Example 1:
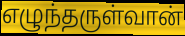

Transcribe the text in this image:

எழுந்தருள்வான்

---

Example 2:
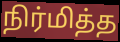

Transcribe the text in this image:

நிர்மித்த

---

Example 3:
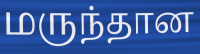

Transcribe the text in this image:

மருந்தான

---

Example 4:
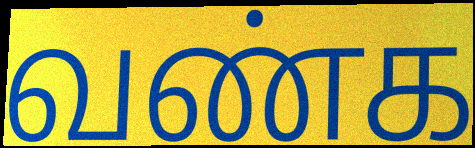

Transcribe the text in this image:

வண்க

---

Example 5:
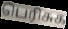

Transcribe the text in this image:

பெரிசுக